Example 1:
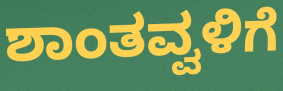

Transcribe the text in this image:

ಶಾಂತವ್ವಳಿಗೆ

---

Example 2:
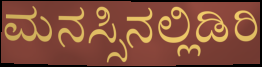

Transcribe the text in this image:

ಮನಸ್ಸಿನಲ್ಲಿಡಿರಿ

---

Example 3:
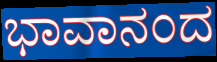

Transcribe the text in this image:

ಭಾವಾನಂದ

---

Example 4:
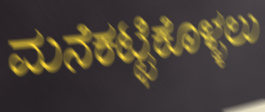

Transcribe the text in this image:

ಮನೆಕಟ್ಟಿಕೊಳ್ಳಲು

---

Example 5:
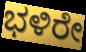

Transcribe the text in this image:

ಭಳಿರೇ